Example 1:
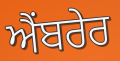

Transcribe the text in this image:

ਐਂਬਰੇਰ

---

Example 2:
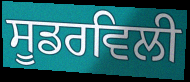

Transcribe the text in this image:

ਸੂਡਰਵਿਲੀ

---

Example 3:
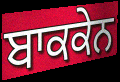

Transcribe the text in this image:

ਬਾਕਕੇਨ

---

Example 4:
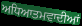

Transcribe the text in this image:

ਅਧਿਆਤਮਵਾਦੀਆਂ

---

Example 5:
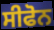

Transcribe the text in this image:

ਸੀਫੋਨ